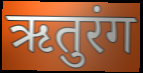
ऋतुरंग